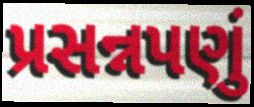
પ્રસન્નપણું